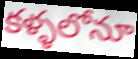
కళ్ళలోనూ